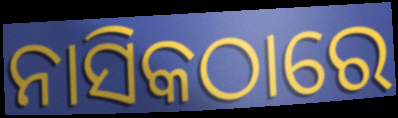
ନାସିକଠାରେ